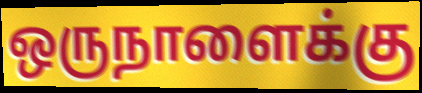
ஒருநாளைக்கு